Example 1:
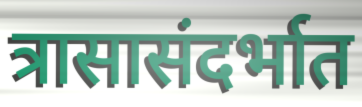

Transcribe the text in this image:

त्रासासंदर्भात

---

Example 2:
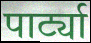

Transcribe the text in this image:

पार्ट्या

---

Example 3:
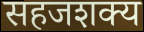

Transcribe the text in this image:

सहजशक्य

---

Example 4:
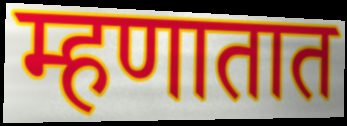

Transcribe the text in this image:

म्हणातात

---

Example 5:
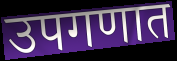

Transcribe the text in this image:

उपगणात